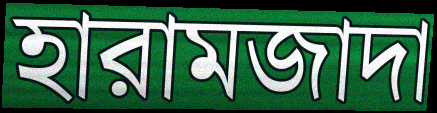
হারামজাদা